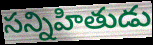
సన్నిహితుడు